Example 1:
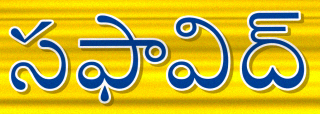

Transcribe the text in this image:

సఫావిద్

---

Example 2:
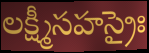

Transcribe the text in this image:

లక్ష్మీసహస్రైః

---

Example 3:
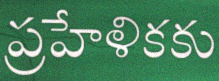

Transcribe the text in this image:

ప్రహేళికకు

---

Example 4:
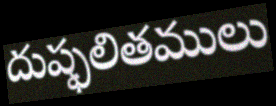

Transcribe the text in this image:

దుష్ఫలితములు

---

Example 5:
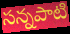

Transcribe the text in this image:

సన్నపాటి